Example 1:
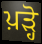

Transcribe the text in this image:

ਪ਼ੜ੍ਹੋ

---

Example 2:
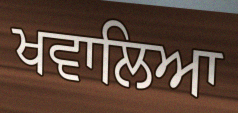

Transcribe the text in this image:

ਖਵਾਲਿਆ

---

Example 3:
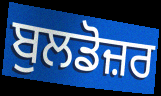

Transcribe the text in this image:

ਬੁਲਡੋਜ਼ਰ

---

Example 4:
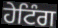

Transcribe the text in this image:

ਹੇਟਿੰਗ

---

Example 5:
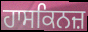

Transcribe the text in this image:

ਹਾਸਕਿਨਜ਼